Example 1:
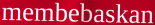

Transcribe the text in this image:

membebaskan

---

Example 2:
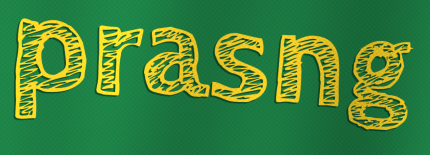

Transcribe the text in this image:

prasng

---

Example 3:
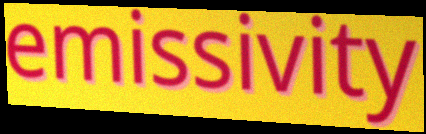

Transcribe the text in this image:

emissivity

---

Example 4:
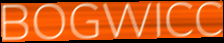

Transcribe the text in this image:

BOGWICC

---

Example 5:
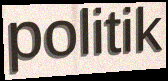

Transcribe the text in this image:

politik